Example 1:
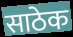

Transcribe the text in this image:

साठेक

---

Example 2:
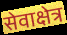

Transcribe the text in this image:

सेवाक्षेत्र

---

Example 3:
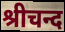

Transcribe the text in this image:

श्रीचन्द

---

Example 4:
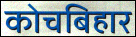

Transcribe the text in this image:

कोचबिहार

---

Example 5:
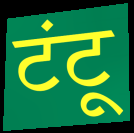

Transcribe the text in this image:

टंटू